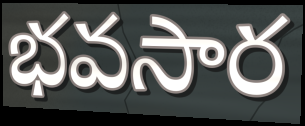
భవసార